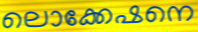
ലൊക്കേഷനെ